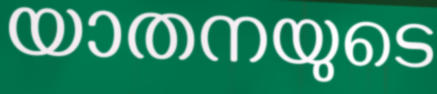
യാതനയുടെ